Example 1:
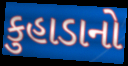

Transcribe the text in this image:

કુહાડાનો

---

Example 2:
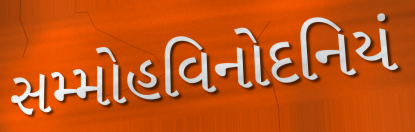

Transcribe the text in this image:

સમ્મોહવિનોદનિયં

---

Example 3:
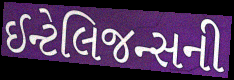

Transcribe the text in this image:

ઈન્ટેલિજન્સની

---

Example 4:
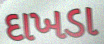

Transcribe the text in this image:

દાખડા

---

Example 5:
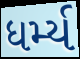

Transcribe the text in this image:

ધર્મ્ય